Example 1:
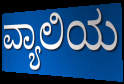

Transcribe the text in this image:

ವ್ಯಾಲಿಯ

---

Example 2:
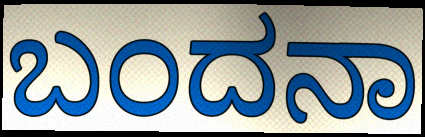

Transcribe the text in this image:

ಬಂದನಾ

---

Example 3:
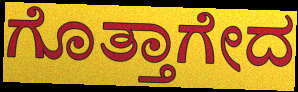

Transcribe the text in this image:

ಗೊತ್ತಾಗೇದ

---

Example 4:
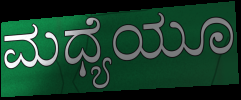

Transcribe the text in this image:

ಮಧ್ಯೆಯೂ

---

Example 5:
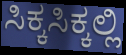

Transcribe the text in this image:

ಸಿಕ್ಕಸಿಕ್ಕಲ್ಲಿ